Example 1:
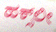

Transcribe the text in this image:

ಹಕ್ಸ್‌ಲೀ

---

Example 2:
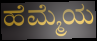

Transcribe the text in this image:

ಹೆಮ್ಮೆಯ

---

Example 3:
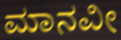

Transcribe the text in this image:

ಮಾನವೀ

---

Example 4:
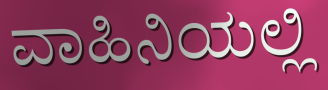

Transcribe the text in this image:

ವಾಹಿನಿಯಲ್ಲಿ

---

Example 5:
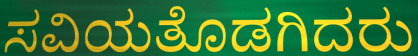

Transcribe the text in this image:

ಸವಿಯತೊಡಗಿದರು